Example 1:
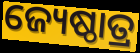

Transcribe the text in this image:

ଜ୍ୟେଷ୍ଠାତ୍ର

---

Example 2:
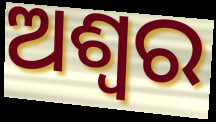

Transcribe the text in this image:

ଅଶ୍ୱର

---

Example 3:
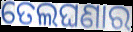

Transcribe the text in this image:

ତେଲଘଣାର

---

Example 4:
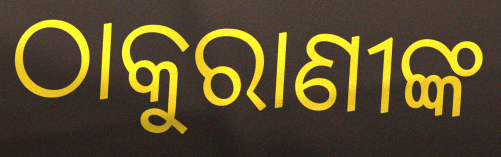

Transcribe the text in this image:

ଠାକୁରାଣୀଙ୍କ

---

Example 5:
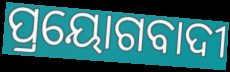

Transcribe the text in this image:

ପ୍ରୟୋଗବାଦୀ